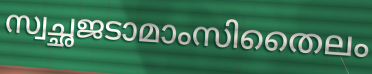
സ്വച്ഛജടാമാംസിതൈലം